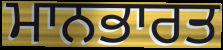
ਮਾਨਭਾਰਤ